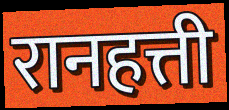
रानहत्ती